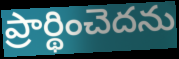
ప్రార్థించెదను